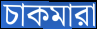
চাকমারা